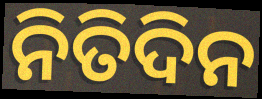
ନିତିଦିନ